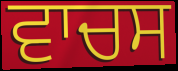
ਵਾਚਸ